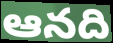
ఆనది